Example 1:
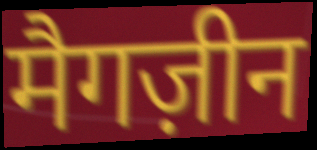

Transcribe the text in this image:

मैगज़ीन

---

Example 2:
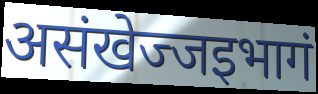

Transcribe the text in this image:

असंखेज्जइभागं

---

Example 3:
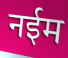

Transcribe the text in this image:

नईम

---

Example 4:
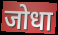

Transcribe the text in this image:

जोधा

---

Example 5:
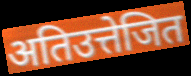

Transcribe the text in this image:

अतिउत्तेजित